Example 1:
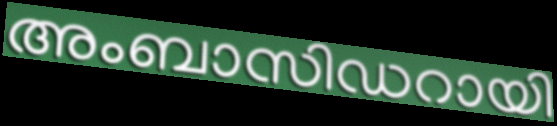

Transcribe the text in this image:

അംബാസിഡറായി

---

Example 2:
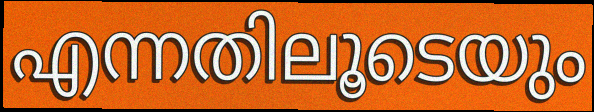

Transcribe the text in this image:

എന്നതിലൂടെയും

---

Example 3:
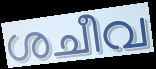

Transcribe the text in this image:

ശചീവ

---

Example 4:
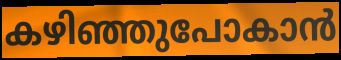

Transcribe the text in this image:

കഴിഞ്ഞുപോകാൻ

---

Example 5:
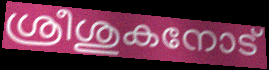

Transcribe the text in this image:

ശ്രീശുകനോട്